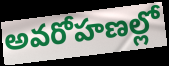
అవరోహణల్లో